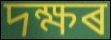
দক্ষৰ